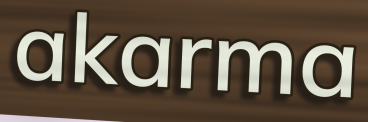
akarma